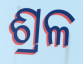
ଶ୍ରଳ